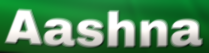
Aashna